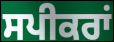
ਸਪੀਕਰਾਂ